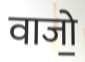
वाजो॒